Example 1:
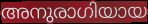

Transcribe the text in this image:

അനുരാഗിയായ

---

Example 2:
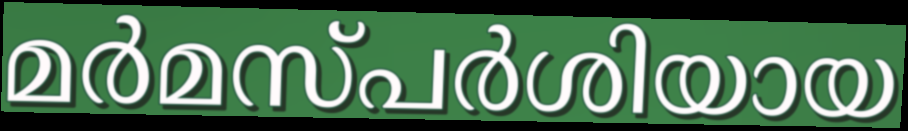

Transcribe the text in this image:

മർമസ്പർശിയായ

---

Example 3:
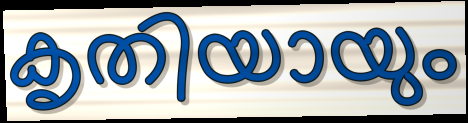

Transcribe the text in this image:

കൃതിയായും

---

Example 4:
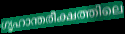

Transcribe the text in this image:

ഗൃഹാന്തരീക്ഷത്തിലെ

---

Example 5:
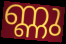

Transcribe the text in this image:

ണ്ണു